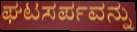
ಘಟಸರ್ಪವನ್ನು